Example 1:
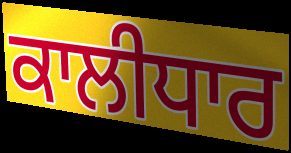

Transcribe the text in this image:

ਕਾਲੀਧਾਰ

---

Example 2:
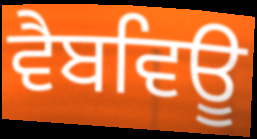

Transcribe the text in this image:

ਵੈਬਵਿਊ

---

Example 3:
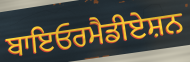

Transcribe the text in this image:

ਬਾਇਓਰਮੈਡੀਏਸ਼ਨ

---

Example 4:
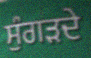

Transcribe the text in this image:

ਸੁੰਗੜਦੇ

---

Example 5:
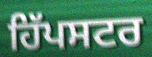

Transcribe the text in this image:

ਹਿੱਪਸਟਰ